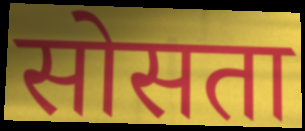
सोसता